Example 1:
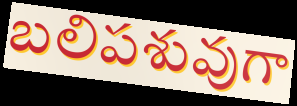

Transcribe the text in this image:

బలిపశువుగా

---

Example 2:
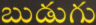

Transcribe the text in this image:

బుడుగు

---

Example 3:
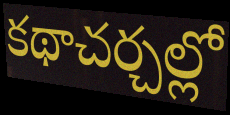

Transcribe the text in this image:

కథాచర్చల్లో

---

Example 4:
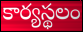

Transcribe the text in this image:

కార్యస్థలం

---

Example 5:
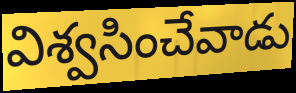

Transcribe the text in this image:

విశ్వసించేవాడు